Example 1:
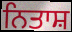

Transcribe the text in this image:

ਨਿਤਾਸ਼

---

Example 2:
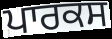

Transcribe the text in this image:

ਪਾਰਕਸ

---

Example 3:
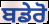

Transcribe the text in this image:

ਬਡੇਰੋ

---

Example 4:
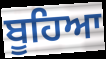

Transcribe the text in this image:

ਬੂਹਿਆ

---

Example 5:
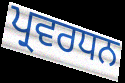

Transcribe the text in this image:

ਪ੍ਰਵਰਧਨ